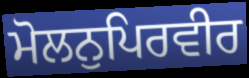
ਮੋਲਨੁਪਿਰਵੀਰ